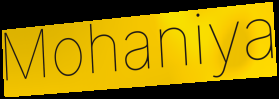
Mohaniya